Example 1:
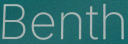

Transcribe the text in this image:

Benth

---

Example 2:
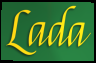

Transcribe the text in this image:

Lada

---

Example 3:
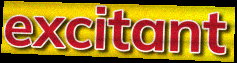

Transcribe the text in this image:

excitant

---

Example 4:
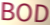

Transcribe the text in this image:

BOD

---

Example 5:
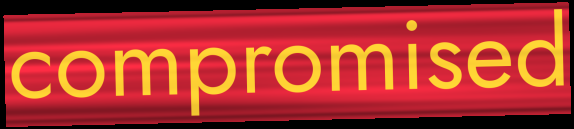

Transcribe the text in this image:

compromised